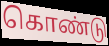
கொண்டு